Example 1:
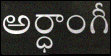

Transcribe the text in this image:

అర్ధాంగీ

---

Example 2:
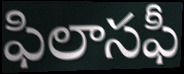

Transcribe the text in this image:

ఫిలాసఫీ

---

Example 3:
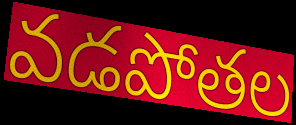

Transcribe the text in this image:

వడపోతల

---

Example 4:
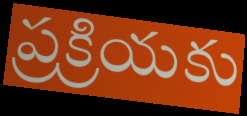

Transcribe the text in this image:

ప్రక్రియకు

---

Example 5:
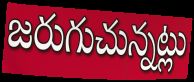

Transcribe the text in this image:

జరుగుచున్నట్లు